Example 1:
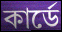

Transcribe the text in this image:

কার্ডে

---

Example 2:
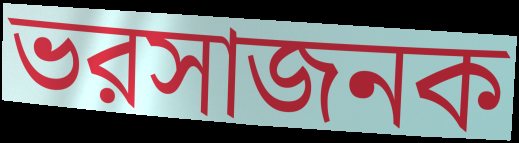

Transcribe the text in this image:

ভরসাজনক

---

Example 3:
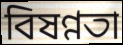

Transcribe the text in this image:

বিষণ্নতা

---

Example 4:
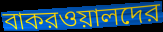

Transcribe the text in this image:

বাকরওয়ালদের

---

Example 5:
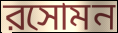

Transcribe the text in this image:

রসোমন